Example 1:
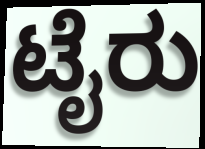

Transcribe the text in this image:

ಟೈರು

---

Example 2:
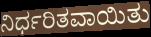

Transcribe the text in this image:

ನಿರ್ಧರಿತವಾಯಿತು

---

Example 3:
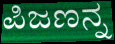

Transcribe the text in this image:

ಪಿಜಣನ್ನ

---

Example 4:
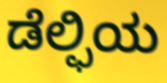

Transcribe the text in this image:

ಡೆಲ್ಫಿಯ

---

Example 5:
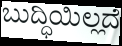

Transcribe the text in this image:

ಬುದ್ಧಿಯಿಲ್ಲದೆ